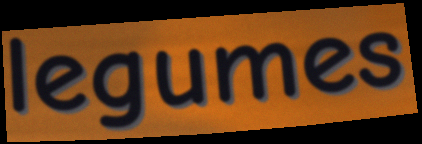
legumes